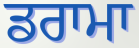
ਡਰਾਮਾ